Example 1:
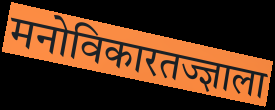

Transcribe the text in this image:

मनोविकारतज्ज्ञाला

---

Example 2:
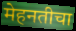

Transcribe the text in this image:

मेहनतीचा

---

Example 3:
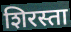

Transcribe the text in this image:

शिरस्ता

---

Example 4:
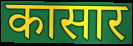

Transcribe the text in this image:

कासार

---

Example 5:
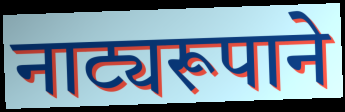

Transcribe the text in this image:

नाट्यरूपाने